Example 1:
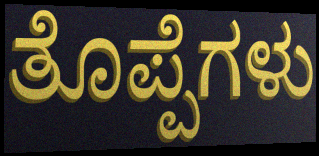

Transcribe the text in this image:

ತೊಪ್ಪೆಗಳು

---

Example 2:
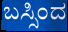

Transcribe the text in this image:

ಬಸ್ಸಿಂದ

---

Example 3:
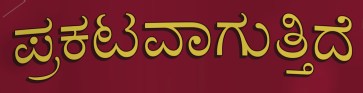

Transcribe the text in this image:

ಪ್ರಕಟವಾಗುತ್ತಿದೆ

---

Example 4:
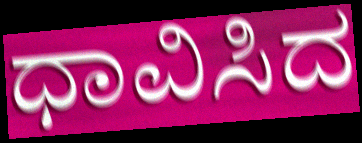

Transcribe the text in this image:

ಧಾವಿಸಿದ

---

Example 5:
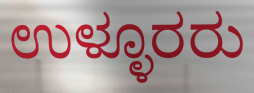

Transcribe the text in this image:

ಉಳ್ಳೂರರು